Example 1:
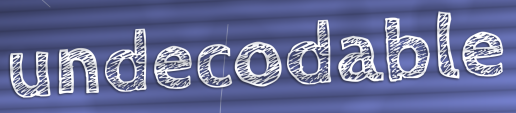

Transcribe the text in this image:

undecodable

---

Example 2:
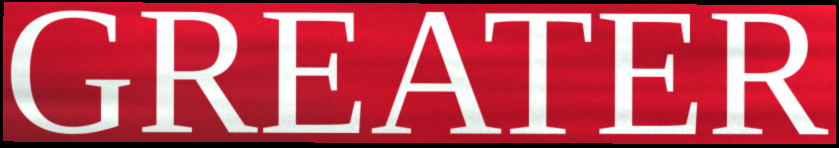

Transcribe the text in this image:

GREATER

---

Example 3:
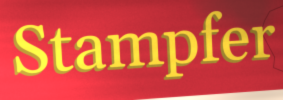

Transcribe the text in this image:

Stampfer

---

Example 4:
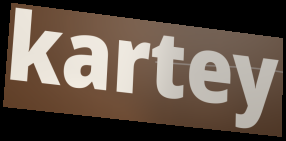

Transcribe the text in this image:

kartey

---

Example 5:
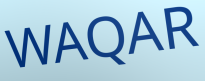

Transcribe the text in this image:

WAQAR